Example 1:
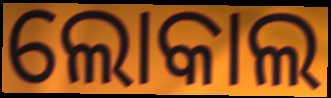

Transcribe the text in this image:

ଲୋକାଲ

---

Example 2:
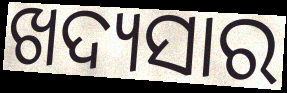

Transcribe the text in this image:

ଖଦ୍ୟସାର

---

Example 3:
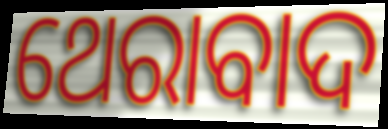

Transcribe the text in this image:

ଥେରାବାଦ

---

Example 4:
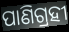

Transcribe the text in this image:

ପାଣିଗ୍ରହୀ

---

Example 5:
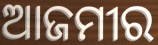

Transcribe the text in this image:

ଆଜମୀର